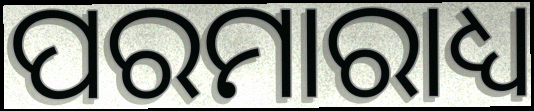
ପରମାରାଧ୍ୟ